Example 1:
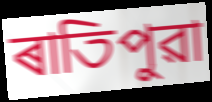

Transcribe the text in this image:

ৰাতিপুৱা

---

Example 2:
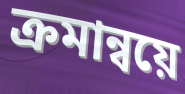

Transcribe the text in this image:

ক্ৰমান্বয়ে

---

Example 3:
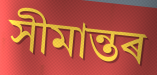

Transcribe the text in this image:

সীমান্তৰ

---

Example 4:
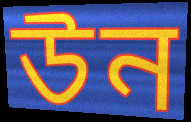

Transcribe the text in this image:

উন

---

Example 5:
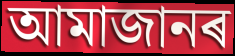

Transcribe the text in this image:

আমাজানৰ